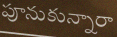
పూనుకున్నారా